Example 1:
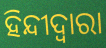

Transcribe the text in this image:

ହିନ୍ଦୀଦ୍ଵାରା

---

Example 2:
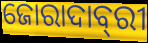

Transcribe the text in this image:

ଜୋରାଦାବ୍‌ରୀ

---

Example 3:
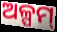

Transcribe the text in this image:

ଅଳ୍ପମ୍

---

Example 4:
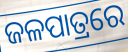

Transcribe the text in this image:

ଜଳପାତ୍ରରେ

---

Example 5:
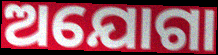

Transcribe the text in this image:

ଅଯୋଗା